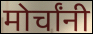
मोर्चांनी